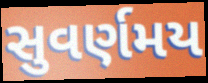
સુવર્ણમય